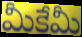
మీకేమీ